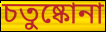
চতুষ্কোনা